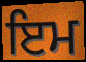
ਇਮ